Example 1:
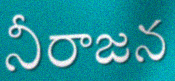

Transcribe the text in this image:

నీరాజన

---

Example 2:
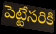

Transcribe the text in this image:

పెట్టేసరికి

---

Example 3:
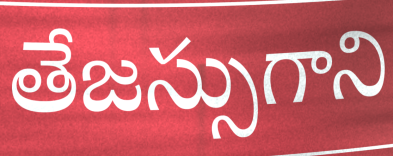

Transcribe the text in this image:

తేజస్సుగాని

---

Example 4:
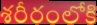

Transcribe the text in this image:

శరీరంలోకి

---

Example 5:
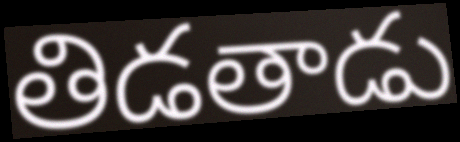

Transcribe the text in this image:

తిడతాడు